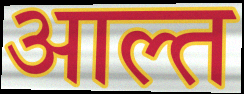
आल्त